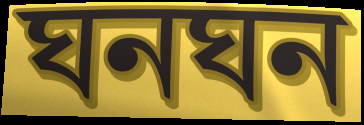
ঘনঘন